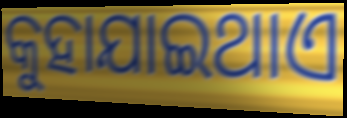
କୁହାଯାଇଥାଏ